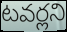
టవర్లని